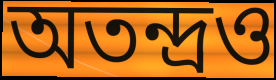
অতন্দ্রও